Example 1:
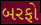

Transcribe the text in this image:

બરફો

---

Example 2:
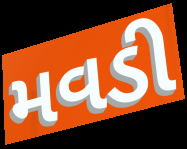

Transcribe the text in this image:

મવડી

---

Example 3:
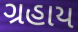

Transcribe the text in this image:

ગ્રહાય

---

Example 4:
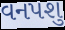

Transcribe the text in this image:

વનપશુ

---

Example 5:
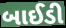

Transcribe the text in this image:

બાઈડી